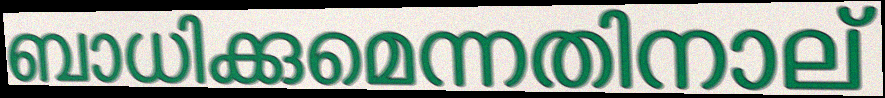
ബാധിക്കുമെന്നതിനാല്